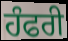
ਹੰਫਰੀ